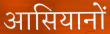
आसियानों